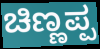
ಚಿಣ್ಣಪ್ಪ